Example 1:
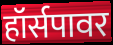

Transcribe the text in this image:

हॉर्सपावर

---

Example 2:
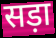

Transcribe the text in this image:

सड़ा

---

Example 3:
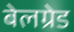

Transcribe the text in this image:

बेलग्रेड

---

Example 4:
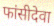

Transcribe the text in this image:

फांसीदेवा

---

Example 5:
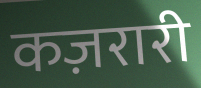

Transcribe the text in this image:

कज़रारी